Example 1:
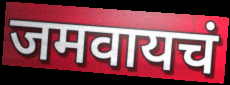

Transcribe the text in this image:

जमवायचं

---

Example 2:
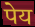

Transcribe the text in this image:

पेय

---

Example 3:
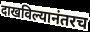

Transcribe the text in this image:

दाखविल्यानंतरच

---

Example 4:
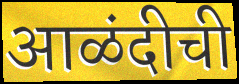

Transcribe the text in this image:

आळंदीची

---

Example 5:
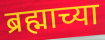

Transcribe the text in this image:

ब्रह्माच्या